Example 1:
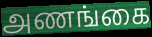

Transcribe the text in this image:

அணங்கை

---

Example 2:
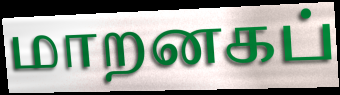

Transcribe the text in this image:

மாறனகப்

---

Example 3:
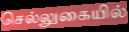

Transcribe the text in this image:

செல்லுகையில்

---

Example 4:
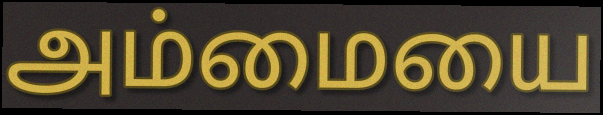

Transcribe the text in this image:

அம்மையை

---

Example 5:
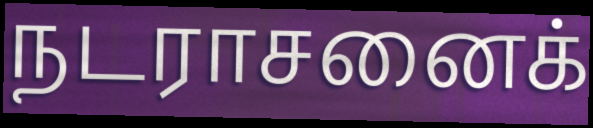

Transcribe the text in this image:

நடராசனைக்